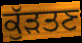
ਕੁੱੜਤਣ